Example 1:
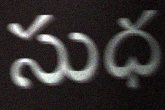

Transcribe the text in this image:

సుధ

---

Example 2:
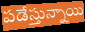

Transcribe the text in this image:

పడేస్తున్నాయి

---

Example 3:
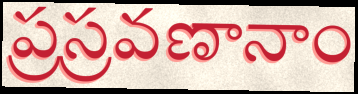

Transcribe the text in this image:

ప్రస్రవణానాం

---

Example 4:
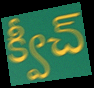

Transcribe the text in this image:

క్వీచ్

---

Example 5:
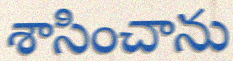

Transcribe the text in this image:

శాసించాను